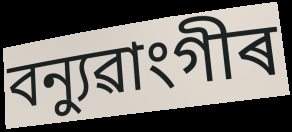
বন্যুৱাংগীৰ